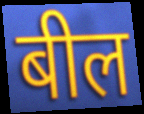
बील